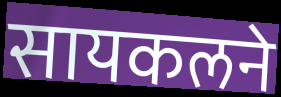
सायकलने